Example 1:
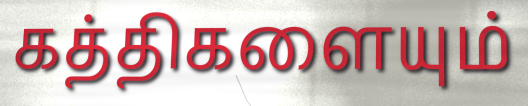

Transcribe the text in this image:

கத்திகளையும்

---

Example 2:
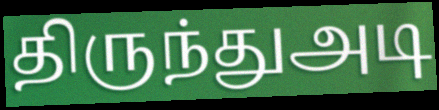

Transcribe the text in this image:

திருந்துஅடி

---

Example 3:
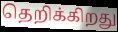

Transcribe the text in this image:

தெறிக்கிறது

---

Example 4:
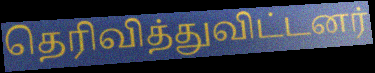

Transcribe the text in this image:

தெரிவித்துவிட்டனர்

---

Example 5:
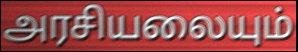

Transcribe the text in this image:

அரசியலையும்